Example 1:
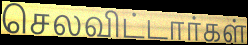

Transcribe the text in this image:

செலவிட்டார்கள்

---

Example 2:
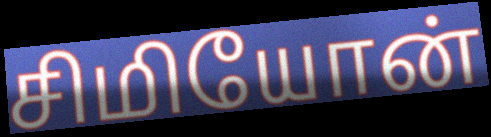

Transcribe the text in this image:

சிமியோன்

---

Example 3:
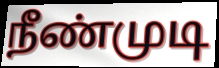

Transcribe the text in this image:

நீண்முடி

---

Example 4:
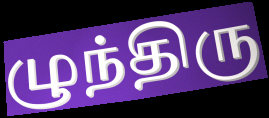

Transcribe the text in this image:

ழுந்திரு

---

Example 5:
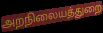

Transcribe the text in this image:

அறநிலையத்துறை